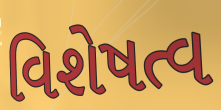
વિશેષત્વ